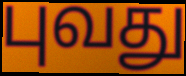
புவது